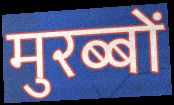
मुरब्बों